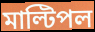
মাল্টিপল